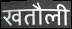
खतौली